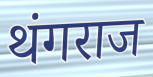
थंगराज